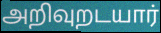
அறிவுறடயார்